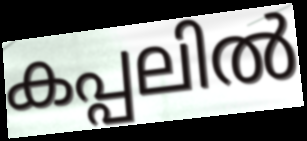
കപ്പലിൽ